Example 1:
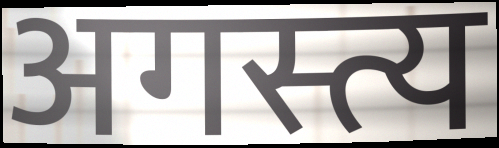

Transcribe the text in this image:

अगस्त्य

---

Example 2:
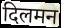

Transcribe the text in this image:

दिलमन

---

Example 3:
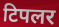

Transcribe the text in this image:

टिपलर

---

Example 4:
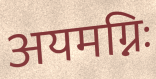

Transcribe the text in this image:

अयमग्निः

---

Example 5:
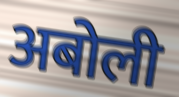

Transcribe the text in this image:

अबोली